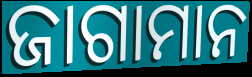
ଜାଗାମାନ